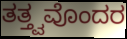
ತತ್ತ್ವವೊಂದರ